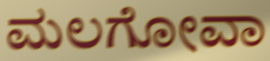
ಮಲಗೋವಾ